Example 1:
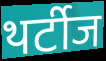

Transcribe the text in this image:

थर्टीज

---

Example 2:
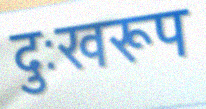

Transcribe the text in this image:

दुःखरूप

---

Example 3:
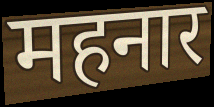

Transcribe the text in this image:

महनार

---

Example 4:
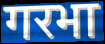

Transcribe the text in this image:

गरभा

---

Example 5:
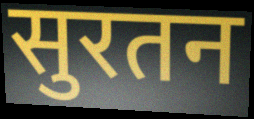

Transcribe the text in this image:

सुरतन